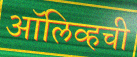
ऑलिव्हची